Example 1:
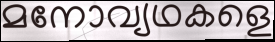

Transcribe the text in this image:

മനോവ്യഥകളെ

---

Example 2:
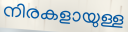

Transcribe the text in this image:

നിരകളായുള്ള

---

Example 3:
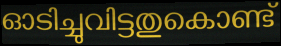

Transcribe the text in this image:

ഓടിച്ചുവിട്ടതുകൊണ്ട്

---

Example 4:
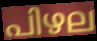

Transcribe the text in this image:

പിഴല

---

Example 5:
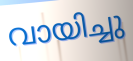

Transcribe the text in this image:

വായിച്ചു